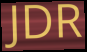
JDR